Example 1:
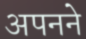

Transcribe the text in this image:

अपनने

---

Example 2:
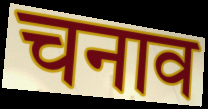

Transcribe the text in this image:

चनाव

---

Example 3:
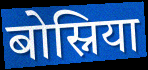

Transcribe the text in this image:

बोस्निया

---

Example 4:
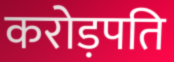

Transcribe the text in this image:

करोड़पति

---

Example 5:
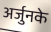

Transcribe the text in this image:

अर्जुनके